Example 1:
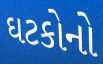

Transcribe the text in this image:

ઘટકોનો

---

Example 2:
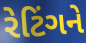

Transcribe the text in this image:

રેટિંગને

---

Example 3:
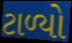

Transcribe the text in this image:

ટાળ્યો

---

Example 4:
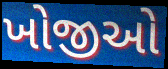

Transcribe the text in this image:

ખોજીઓ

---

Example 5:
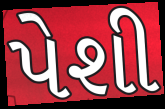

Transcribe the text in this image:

પેશી